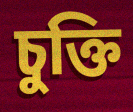
চুক্তি